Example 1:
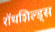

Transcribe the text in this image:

रॉथशिल्ड्स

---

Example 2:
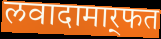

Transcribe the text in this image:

लवादामार्फत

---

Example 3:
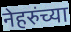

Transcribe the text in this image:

नेहरुंच्या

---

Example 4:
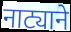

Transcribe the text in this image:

नाट्याने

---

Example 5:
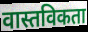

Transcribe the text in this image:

वास्तविकता